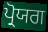
ਪ੍ਰੋਯਗ